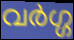
വർഗ്ഗ